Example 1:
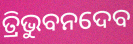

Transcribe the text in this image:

ତ୍ରିଭୁବନଦେବ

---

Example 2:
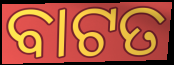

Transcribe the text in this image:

ବାଟତ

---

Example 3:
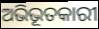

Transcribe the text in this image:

ଅଭିଭୂତକାରୀ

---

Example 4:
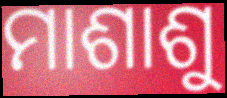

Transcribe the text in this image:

ମାଶାଶୁ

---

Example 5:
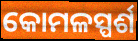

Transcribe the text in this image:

କୋମଳସ୍ପର୍ଶ